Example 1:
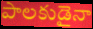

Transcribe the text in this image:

పాలకుడైనా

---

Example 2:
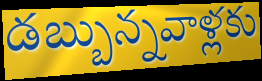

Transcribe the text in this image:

డబ్బున్నవాళ్లకు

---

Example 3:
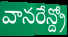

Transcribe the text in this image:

వానరేన్ద్రో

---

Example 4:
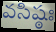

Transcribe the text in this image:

వసిష్ఠః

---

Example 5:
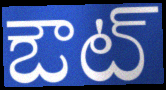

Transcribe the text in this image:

ఔట్